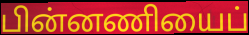
பின்னணியைப்